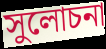
সুলোচনা